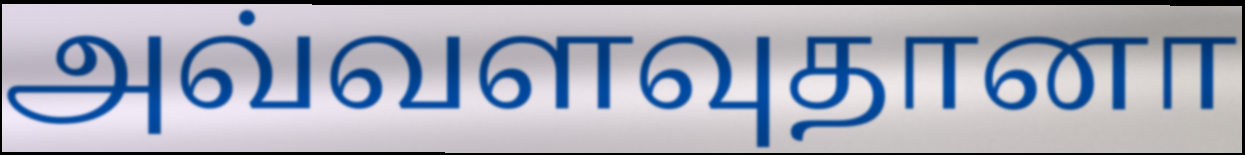
அவ்வளவுதானா